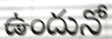
ఉందునో